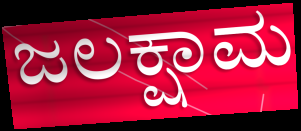
ಜಲಕ್ಷಾಮ